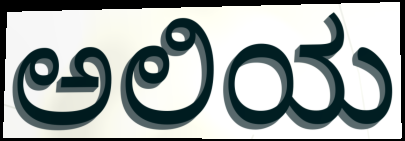
ಅಲಿಯ